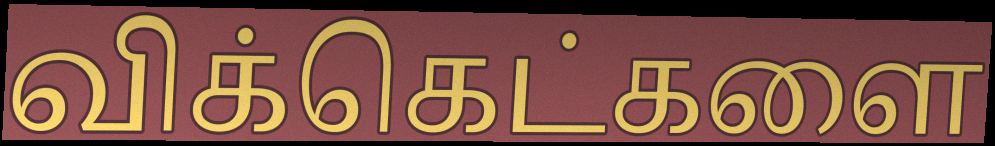
விக்கெட்களை